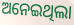
ଅନେଇଥିଲା